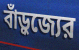
বাঁড়ুজ্যের